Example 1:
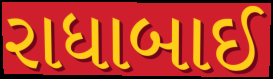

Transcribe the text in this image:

રાધાબાઈ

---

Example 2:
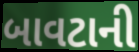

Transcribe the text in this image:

બાવટાની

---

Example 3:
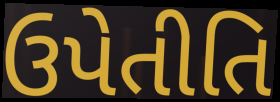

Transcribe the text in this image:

ઉપેતીતિ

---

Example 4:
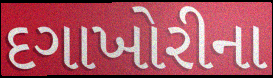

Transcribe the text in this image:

દગાખોરીના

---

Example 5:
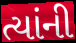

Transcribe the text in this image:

ત્યાંની